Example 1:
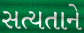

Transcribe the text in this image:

સત્યતાને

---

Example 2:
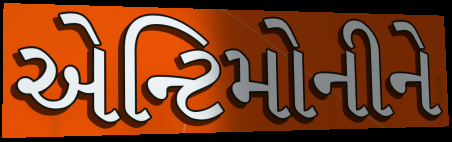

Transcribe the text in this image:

એન્ટિમોનીને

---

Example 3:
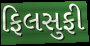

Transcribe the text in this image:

ફિલસુફી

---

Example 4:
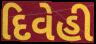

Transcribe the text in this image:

દિવેહી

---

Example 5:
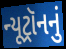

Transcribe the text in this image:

ન્યૂટ્રૉનનું